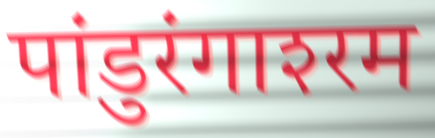
पांडुरंगाश्रम